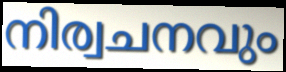
നിര്വചനവും